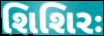
શિશિરઃ